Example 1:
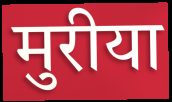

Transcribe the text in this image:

मुरीया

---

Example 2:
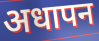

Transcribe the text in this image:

अधापन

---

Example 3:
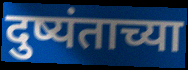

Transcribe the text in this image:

दुष्यंताच्या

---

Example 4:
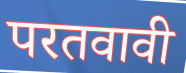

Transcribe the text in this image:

परतवावी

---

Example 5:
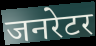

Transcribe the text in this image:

जनरेटर